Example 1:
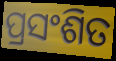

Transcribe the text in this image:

ପ୍ରସଂଶିତ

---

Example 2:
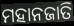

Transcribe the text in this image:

ମହାନଜାତି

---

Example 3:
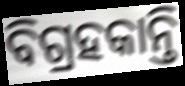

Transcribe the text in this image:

ବିଗ୍ରହକାନ୍ତି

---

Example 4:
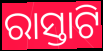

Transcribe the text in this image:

ରାସ୍ତାଟି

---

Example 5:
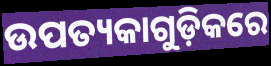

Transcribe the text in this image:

ଉପତ୍ୟକାଗୁଡ଼ିକରେ